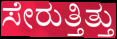
ಸೇರುತ್ತಿತ್ತು